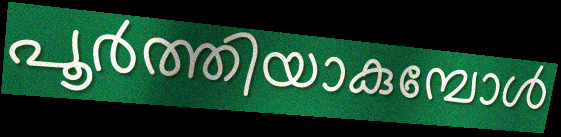
പൂർത്തിയാകുമ്പോൾ